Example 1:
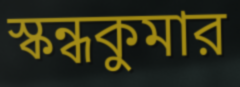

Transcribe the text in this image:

স্কন্ধকুমার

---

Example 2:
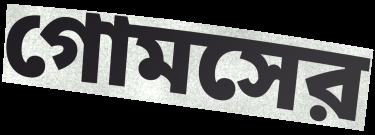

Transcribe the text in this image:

গোমসের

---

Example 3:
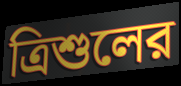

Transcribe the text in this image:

ত্রিশুলের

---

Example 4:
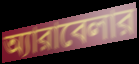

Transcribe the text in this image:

অ্যারাবেলার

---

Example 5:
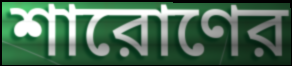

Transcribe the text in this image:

শারোণের